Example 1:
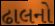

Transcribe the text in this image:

ઢાલનો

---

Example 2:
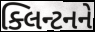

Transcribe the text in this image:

ક્લિન્ટનને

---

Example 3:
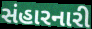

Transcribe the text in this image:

સંહારનારી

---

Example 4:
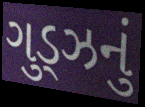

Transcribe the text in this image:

ગુડ્ઝનું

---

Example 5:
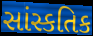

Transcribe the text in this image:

સાંસ્કતિક